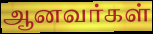
ஆனவர்கள்